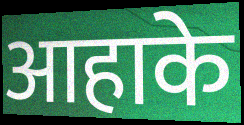
आहाके